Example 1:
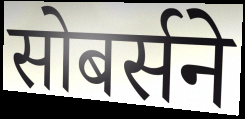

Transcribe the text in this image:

सोबर्सने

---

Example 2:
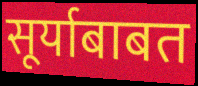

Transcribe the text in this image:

सूर्याबाबत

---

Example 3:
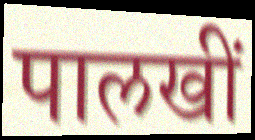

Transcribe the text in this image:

पालखीं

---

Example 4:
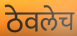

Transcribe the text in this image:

ठेवलेच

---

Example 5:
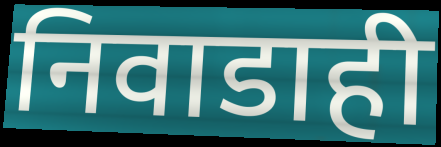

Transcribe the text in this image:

निवाडाही